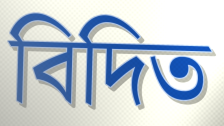
বিদিত